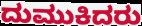
ದುಮುಕಿದರು